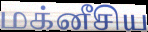
மக்னீசிய